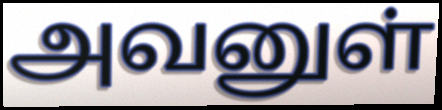
அவனுள்